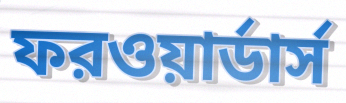
ফরওয়ার্ডার্স